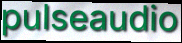
pulseaudio